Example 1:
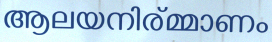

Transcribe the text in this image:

ആലയനിര്മ്മാണം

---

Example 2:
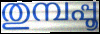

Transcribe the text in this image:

തുമ്പപ്പൂ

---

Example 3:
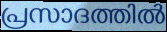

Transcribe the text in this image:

പ്രസാദത്തിൽ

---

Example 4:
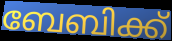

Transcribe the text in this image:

ബേബിക്ക്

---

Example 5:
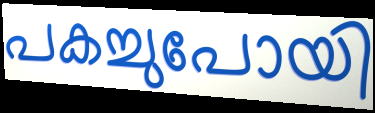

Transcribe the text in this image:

പകച്ചുപോയി